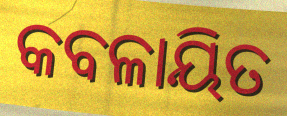
କବଳାୟିତ